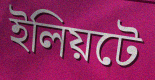
ইলিয়টে